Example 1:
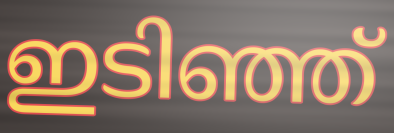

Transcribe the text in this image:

ഇടിഞ്ഞ്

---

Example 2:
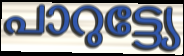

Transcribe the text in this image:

പാറുട്ട്യേ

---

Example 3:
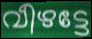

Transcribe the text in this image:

വീഴട്ടേ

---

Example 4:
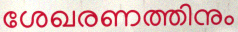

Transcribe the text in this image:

ശേഖരണത്തിനും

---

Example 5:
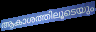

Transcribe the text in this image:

ആകാശത്തിലൂടെയും